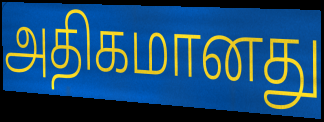
அதிகமானது